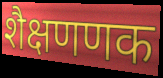
शैक्षणणक